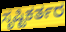
ಸೃಷ್ಟಿಕರ್ತರ